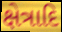
ક્ષેત્રાદિ